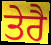
ਤੇਰੈ